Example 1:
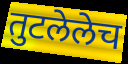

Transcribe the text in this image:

तुटलेलेच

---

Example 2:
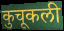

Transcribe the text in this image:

कुचूकली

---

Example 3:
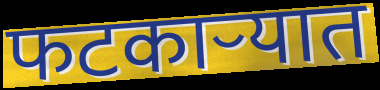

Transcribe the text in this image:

फटकाऱ्यात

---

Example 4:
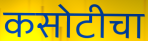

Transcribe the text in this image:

कसोटीचा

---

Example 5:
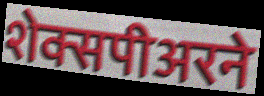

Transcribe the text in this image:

शेक्सपीअरने